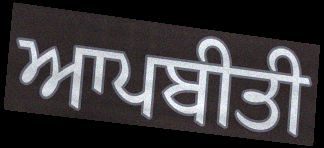
ਆਪਬੀਤੀ